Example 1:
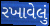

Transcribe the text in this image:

રખાવેલું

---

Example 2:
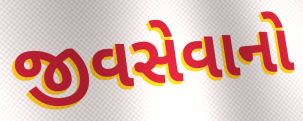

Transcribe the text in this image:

જીવસેવાનો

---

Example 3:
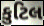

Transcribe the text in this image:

કુટિલ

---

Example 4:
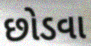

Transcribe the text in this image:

છોડવા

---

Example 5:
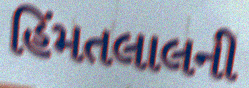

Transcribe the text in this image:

હિંમતલાલની